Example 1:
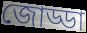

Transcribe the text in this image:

জোড্ডা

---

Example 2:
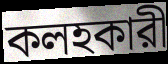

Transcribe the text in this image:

কলহকারী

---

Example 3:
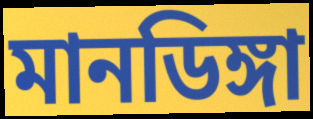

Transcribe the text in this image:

মানডিঙ্গা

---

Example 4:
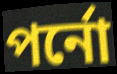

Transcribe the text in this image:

পর্নো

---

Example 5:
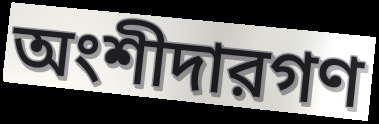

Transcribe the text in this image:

অংশীদারগণ